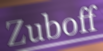
Zuboff